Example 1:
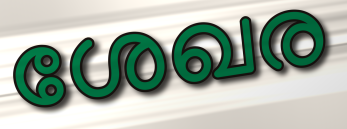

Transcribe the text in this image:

ശേഖര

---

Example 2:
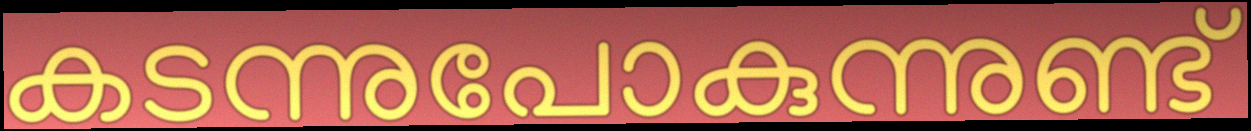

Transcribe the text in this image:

കടന്നുപോകുന്നുണ്ട്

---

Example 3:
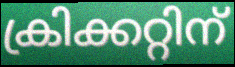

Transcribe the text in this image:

ക്രിക്കറ്റിന്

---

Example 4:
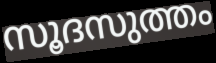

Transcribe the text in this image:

സൂദസുത്തം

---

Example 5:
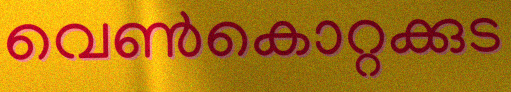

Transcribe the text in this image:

വെൺകൊറ്റക്കുട